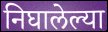
निघालेल्या